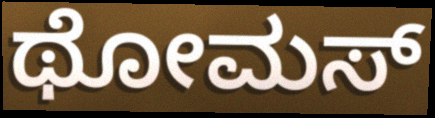
ಥೋಮಸ್